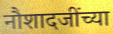
नौशादजींच्या